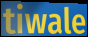
tiwale